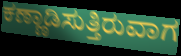
ಕಣ್ಣಾಡಿಸುತ್ತಿರುವಾಗ